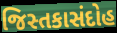
જિસ્તકાસંદોહ